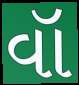
વૉ